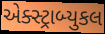
એક્સ્ટ્રાબ્યુકલ